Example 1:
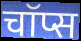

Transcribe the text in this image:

चॉप्स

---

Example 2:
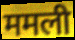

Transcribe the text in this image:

ममली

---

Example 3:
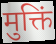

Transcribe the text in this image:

मुक्तिं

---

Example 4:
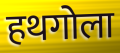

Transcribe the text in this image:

हथगोला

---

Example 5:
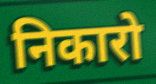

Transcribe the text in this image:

निकारो